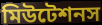
মিউটেশনস